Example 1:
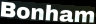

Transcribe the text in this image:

Bonham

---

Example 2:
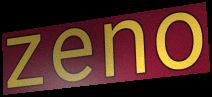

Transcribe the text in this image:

zeno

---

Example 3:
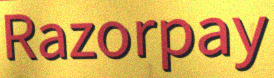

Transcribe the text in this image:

Razorpay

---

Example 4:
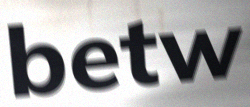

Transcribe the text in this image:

betw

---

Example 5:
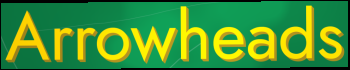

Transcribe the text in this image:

Arrowheads